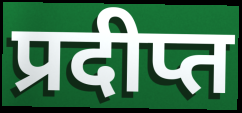
प्रदीप्त